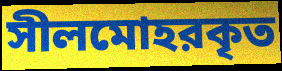
সীলমোহরকৃত